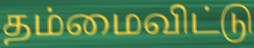
தம்மைவிட்டு